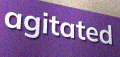
agitated